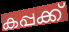
കപ്പക്ക്